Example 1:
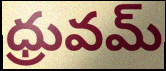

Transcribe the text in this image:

ధ్రువమ్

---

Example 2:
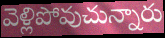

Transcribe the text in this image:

వెళ్లిపోవుచున్నారు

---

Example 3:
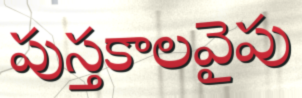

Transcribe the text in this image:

పుస్తకాలవైపు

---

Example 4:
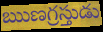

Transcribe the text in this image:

ఋణగ్రస్తుడు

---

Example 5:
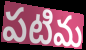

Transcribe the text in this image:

పటిమ